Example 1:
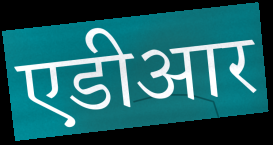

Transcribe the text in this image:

एडीआर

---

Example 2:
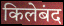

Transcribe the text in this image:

किलेबंद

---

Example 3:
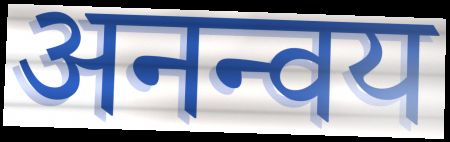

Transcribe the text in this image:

अनन्वय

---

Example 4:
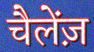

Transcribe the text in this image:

चैलेंज़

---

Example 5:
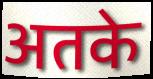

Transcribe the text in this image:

अतके